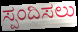
ಸ್ಪಂದಿಸಲು